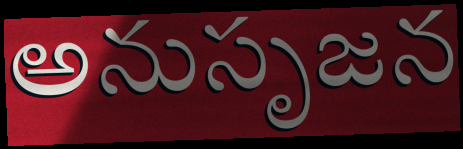
అనుసృజన